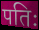
पतिः